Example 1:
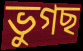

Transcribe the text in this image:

ভুগছ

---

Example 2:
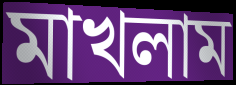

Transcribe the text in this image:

মাখলাম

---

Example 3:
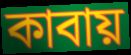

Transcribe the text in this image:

কাবায়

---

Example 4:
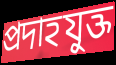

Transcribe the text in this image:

প্রদাহযুক্ত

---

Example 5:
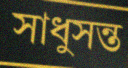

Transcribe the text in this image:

সাধুসন্ত